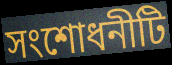
সংশোধনীটি